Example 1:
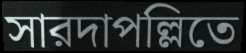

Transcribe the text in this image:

সারদাপল্লিতে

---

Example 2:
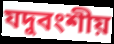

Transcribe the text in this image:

যদুবংশীয়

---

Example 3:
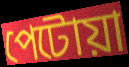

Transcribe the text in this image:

পেটোয়া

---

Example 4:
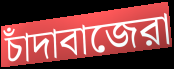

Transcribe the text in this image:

চাঁদাবাজেরা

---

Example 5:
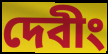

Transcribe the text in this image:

দেবীং